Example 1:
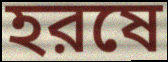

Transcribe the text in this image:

হরষে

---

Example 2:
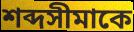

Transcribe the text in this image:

শব্দসীমাকে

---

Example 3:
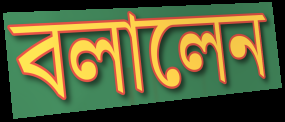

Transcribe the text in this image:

বলালেন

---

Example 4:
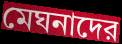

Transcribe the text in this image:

মেঘনাদের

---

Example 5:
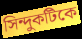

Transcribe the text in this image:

সিন্দুকটিকে